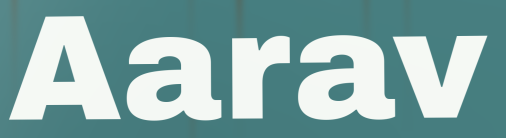
Aarav